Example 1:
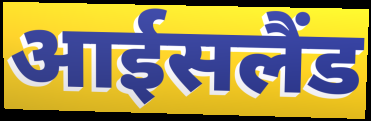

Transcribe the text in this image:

आईसलैंड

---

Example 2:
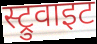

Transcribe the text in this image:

स्ट्रुवाइट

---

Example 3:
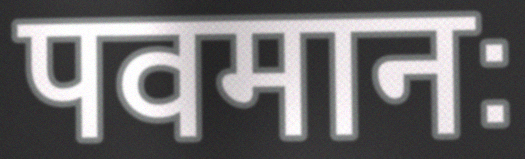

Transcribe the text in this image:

पवमानः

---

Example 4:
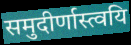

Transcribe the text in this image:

समुदीर्णास्त्वयि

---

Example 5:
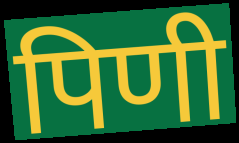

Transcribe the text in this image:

पिणी